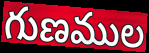
గుణముల